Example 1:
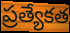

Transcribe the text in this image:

ప్రత్యేకత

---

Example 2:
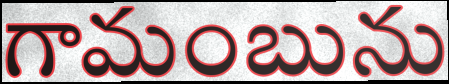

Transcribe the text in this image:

గామంబును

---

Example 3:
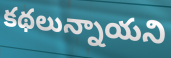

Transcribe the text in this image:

కథలున్నాయని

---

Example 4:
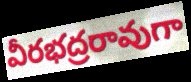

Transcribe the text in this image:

వీరభద్రరావుగా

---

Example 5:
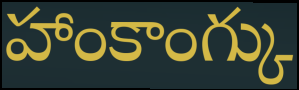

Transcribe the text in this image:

హాంకాంగ్కు